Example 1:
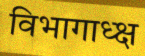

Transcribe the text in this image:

विभागाध्क्ष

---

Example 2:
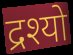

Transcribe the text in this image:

द्रश्यो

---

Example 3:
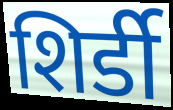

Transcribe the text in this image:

शिर्डी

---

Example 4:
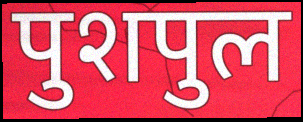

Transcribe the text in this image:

पुशपुल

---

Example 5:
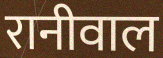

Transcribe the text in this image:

रानीवाल